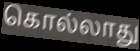
கொல்லாது